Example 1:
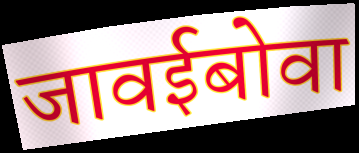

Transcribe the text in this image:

जावईबोवा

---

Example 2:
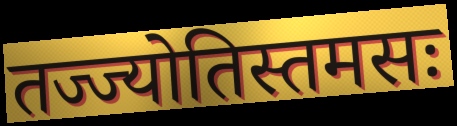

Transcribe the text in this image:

तज्ज्योतिस्तमसः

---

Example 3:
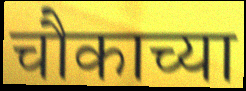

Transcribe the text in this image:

चौकाच्या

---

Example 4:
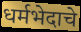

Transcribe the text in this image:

धर्मभेदाचे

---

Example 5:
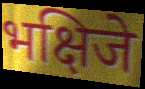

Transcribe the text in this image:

भक्षिजे